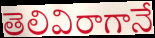
తెలివిరాగానే